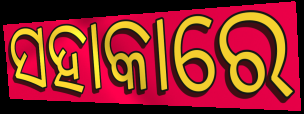
ସହାକାରେ